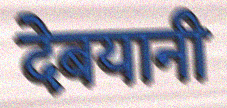
देबयानी